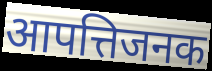
आपत्तिजनक